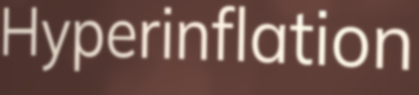
Hyperinflation